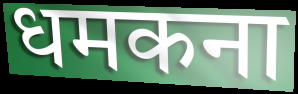
धमकना